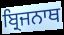
ਬ੍ਰਿਜਨਾਥ